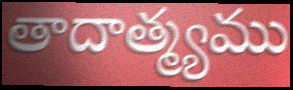
తాదాత్మ్యము